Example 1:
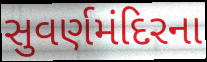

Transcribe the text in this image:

સુવર્ણમંદિરના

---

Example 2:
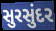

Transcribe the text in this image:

સુરસુંદર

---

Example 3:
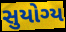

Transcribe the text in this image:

સુયોગ્ય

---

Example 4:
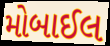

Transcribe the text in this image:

મોબાઈલ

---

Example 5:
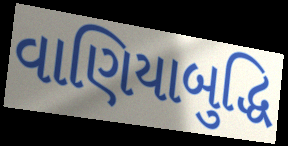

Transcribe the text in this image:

વાણિયાબુદ્ધિ